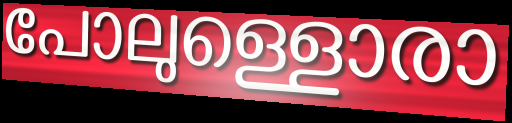
പോലുള്ളൊരാ